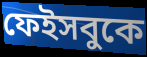
ফেইসবুকে